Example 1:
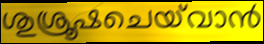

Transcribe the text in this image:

ശുശ്രൂഷചെയ്‌വാൻ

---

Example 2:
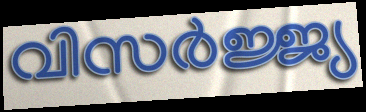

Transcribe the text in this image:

വിസർജ്ജ്യ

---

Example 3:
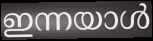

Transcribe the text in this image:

ഇന്നയാൾ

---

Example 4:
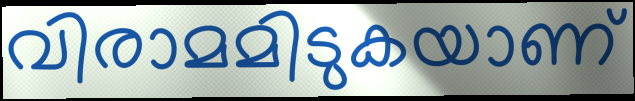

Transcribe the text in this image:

വിരാമമിടുകയാണ്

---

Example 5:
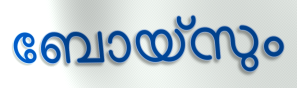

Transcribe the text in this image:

ബോയ്സും